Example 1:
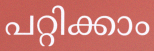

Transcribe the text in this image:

പറ്റിക്കാം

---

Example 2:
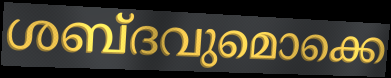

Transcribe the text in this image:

ശബ്ദവുമൊക്കെ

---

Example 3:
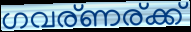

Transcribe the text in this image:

ഗവര്ണര്ക്ക്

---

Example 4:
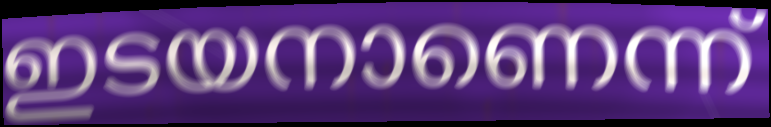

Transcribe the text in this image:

ഇടയനാണെന്ന്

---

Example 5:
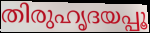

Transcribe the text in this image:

തിരുഹൃദയപ്പൂ